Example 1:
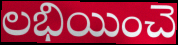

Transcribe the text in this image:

లభియించె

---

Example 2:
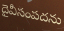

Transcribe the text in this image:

దైవీసంపదను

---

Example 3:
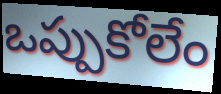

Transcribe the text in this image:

ఒప్పుకోలేం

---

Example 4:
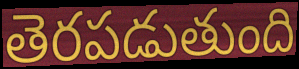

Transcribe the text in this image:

తెరపడుతుంది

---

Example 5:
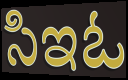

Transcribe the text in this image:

సిఇఓ